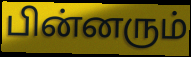
பின்னரும்